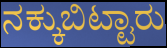
ನಕ್ಕುಬಿಟ್ಟಾರು